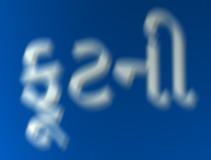
ફૂટની